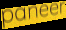
paneer